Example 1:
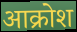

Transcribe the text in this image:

आक्रोश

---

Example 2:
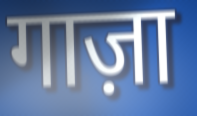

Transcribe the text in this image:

गाज़ा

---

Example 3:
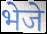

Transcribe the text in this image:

भेजे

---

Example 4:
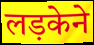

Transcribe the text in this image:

लड़केने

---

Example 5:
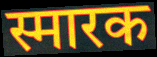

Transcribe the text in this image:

स्मारक